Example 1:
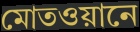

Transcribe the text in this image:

মোতওয়ানে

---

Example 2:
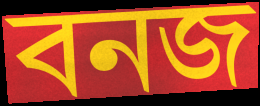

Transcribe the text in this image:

বনজ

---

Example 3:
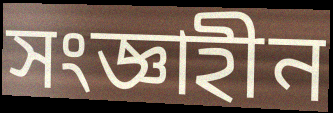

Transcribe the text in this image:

সংজ্ঞাহীন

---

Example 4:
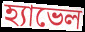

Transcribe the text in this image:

হ্যাভেল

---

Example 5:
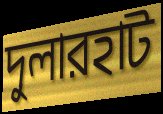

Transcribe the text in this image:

দুলারহাট